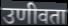
उणीवता